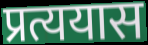
प्रत्ययास